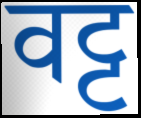
वट्ट